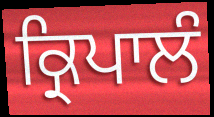
ਕ੍ਰਿਪਾਲੰ